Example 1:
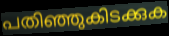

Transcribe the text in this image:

പതിഞ്ഞുകിടക്കുക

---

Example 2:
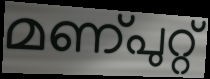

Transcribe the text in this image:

മണ്പുറ്റ്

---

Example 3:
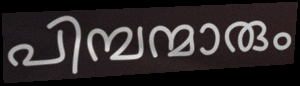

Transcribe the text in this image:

പിമ്പന്മാരും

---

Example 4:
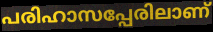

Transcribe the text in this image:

പരിഹാസപ്പേരിലാണ്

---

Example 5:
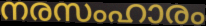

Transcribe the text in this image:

നരസംഹാരം